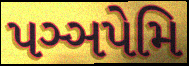
પઞ્ઞપેમિ